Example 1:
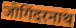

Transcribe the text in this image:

जोगिंदरनाथ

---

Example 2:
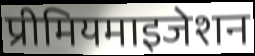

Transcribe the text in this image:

प्रीमियमाइजेशन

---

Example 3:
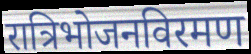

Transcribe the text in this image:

रात्रिभोजनविरमण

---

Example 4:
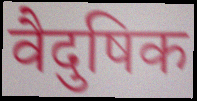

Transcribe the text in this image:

वैदुषिक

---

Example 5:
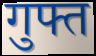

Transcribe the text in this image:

गुफ्त